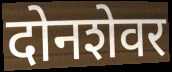
दोनशेवर